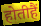
होतीहैं